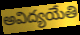
అవిద్యయేతి